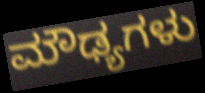
ಮೌಢ್ಯಗಳು